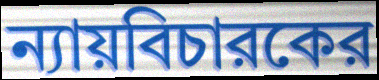
ন্যায়বিচারকের